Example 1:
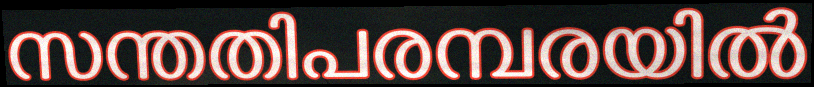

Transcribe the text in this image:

സന്തതിപരമ്പരയിൽ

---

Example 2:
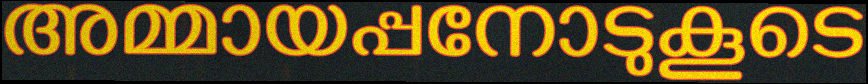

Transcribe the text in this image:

അമ്മായപ്പനോടുകൂടെ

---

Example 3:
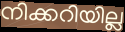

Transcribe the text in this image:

നിക്കറിയില്ല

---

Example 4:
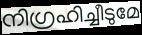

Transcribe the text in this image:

നിഗ്രഹിച്ചീടുമേ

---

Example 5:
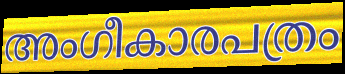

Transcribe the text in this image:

അംഗീകാരപത്രം